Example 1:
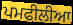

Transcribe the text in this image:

ਪਮਫੀਲੀਆ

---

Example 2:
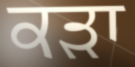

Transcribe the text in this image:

ਕੜਾ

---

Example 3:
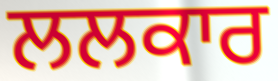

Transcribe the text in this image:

ਲਲਕਾਰ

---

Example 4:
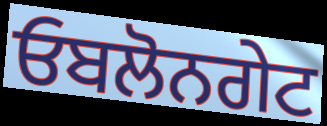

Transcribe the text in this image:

ਓਬਲੋਨਗੇਟ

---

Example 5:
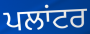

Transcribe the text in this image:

ਪਲਾਂਟਰ